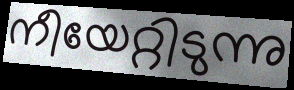
നീയേറ്റിടുന്നു